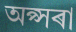
অপ্সৰা